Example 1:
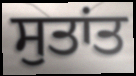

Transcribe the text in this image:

ਸੁਤਾਂਤ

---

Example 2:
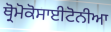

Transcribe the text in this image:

ਥ੍ਰੋਮੋਕੋਸਾਈਟੋਨੀਆ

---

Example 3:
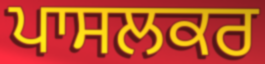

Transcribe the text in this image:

ਪਾਸਲਕਰ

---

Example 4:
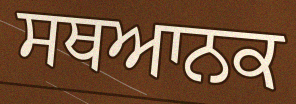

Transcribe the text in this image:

ਸਥਆਨਕ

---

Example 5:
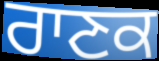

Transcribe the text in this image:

ਰਾਣਕ